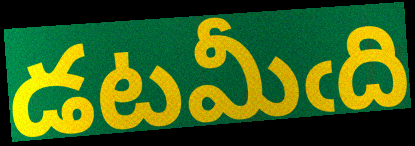
డటమీఁది